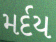
મર્દય